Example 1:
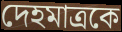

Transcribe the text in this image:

দেহমাত্রকে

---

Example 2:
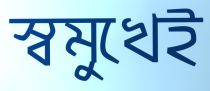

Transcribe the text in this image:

স্বমুখেই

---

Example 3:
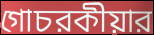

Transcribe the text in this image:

গোচরকীয়ার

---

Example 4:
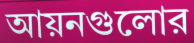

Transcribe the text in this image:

আয়নগুলোর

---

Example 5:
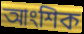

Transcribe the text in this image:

আংশিক